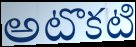
అటొకటి